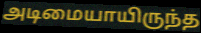
அடிமையாயிருந்த